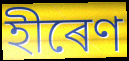
হীৰেণ